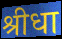
श्रीधा